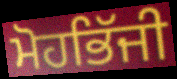
ਮੋਹਭਿੱਜੀ